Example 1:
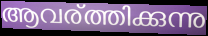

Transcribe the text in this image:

ആവര്ത്തിക്കുന്നു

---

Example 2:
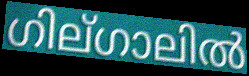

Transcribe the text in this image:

ഗില്ഗാലിൽ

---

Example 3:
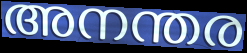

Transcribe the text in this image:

അനന്തര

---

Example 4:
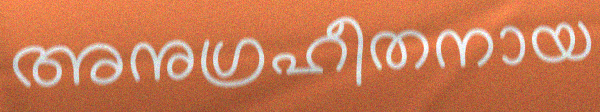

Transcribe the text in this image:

അനുഗ്രഹീതനായ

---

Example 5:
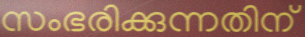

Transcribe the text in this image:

സംഭരിക്കുന്നതിന്